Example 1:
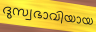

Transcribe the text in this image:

ദുസ്വഭാവിയായ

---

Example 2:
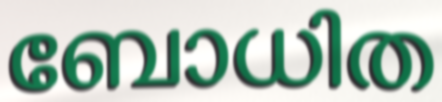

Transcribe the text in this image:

ബോധിത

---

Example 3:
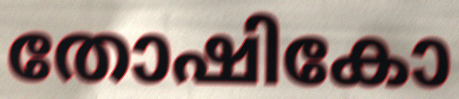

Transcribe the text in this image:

തോഷികോ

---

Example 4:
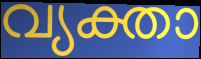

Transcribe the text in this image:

വ്യക്താ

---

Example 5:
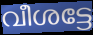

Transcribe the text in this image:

വീശട്ടേ